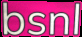
bsnl